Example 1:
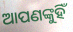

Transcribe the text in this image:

ଆପଣଙ୍କୁହିଁ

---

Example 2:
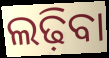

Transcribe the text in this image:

ଲଢ଼ିବା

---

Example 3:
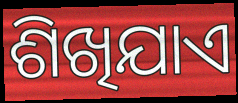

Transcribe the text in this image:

ଶିଖିଯାଏ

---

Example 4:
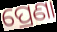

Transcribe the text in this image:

ପ୍ରେଣା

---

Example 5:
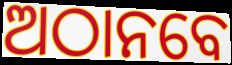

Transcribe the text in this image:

ଅଠାନବେ